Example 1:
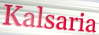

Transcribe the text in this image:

Kalsaria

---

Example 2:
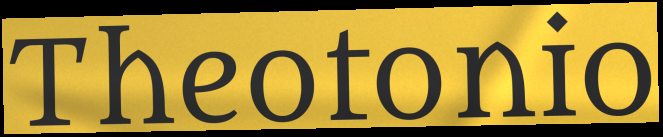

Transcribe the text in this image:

Theotonio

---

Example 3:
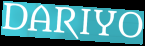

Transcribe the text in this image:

DARIYO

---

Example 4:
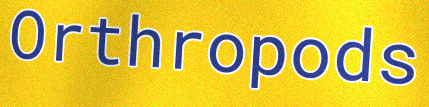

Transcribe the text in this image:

Orthropods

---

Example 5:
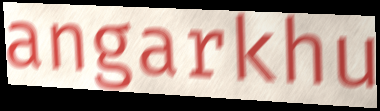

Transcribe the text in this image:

angarkhu